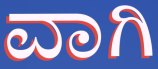
ವಾಗಿ